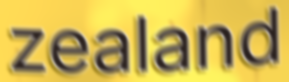
zealand